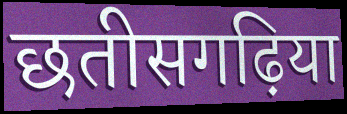
छतीसगढ़िया